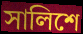
সালিশে